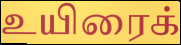
உயிரைக்